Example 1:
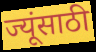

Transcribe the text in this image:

ज्यूंसाठी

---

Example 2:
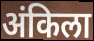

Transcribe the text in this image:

अंकिला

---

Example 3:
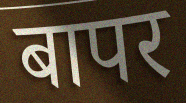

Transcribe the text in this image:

बापर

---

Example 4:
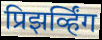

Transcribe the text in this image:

प्रिझर्व्हिंग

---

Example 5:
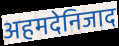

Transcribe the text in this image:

अहमदेनिजाद